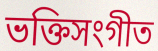
ভক্তিসংগীত